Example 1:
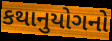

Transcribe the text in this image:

કથાનુયોગનો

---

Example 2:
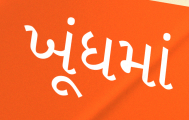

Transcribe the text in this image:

ખૂંધમાં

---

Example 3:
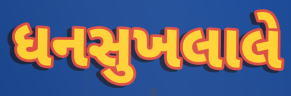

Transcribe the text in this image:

ધનસુખલાલે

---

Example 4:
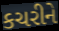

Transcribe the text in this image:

કચરીને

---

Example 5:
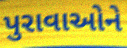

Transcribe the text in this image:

પુરાવાઓને